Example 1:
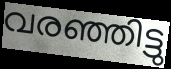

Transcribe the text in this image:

വരഞ്ഞിട്ടു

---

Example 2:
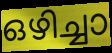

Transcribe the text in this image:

ഒഴിച്ചാ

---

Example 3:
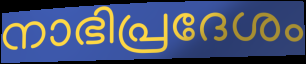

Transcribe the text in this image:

നാഭിപ്രദേശം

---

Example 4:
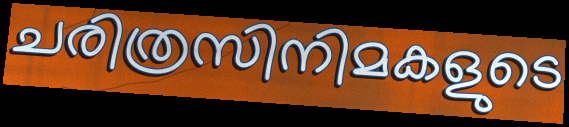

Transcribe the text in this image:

ചരിത്രസിനിമകളുടെ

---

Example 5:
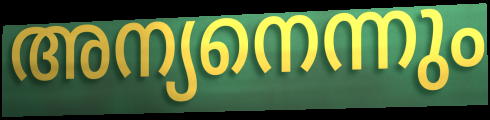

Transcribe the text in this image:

അന്യനെന്നും